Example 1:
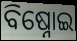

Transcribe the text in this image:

ବିଷ୍ନୋଇ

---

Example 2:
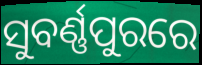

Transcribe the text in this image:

ସୁବର୍ଣ୍ଣପୁରରେ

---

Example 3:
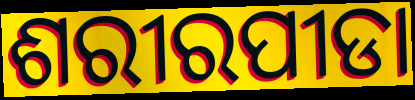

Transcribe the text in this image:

ଶରୀରପୀଡା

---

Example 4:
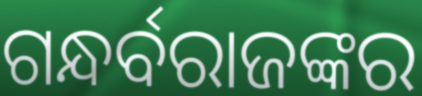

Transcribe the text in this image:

ଗନ୍ଧର୍ବରାଜଙ୍କର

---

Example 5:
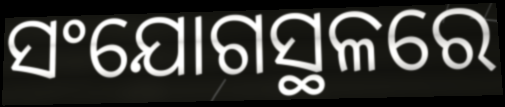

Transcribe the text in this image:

ସଂଯୋଗସ୍ଥଳରେ